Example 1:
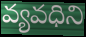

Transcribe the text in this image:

వ్యవధిని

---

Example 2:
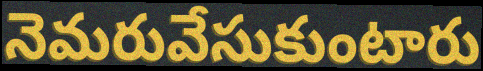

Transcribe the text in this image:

నెమరువేసుకుంటారు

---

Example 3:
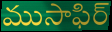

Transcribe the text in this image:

ముసాఫిర్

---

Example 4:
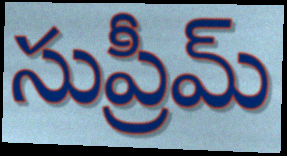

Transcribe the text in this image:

సుప్రీమ్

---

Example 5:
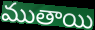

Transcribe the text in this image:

ముతాయి